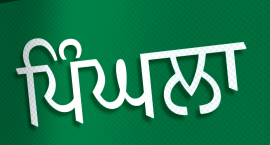
ਪਿੰਘਲਾ